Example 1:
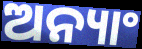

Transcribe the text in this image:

ଅନ୍ୟାଂ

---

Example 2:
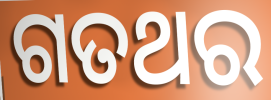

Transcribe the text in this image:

ଗତଥର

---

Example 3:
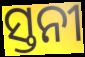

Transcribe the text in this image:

ସ୍ତନୀ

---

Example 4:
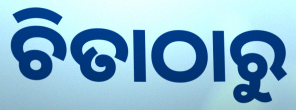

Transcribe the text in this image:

ଚିତାଠାରୁ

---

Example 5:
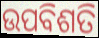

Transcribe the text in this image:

ଉପବିଶତି